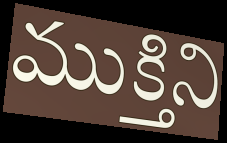
ముక్తిని